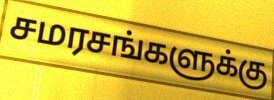
சமரசங்களுக்கு